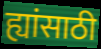
ह्यांसाठी